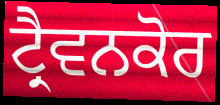
ਟ੍ਰੈਵਨਕੋਰ